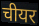
चीयर